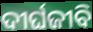
ଦୀର୍ଘଜୀବି